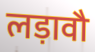
लड़ावौ